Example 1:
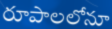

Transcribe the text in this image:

రూపాలలోనూ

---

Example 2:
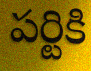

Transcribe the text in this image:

పర్టికి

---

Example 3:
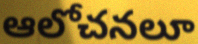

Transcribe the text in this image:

ఆలోచనలూ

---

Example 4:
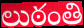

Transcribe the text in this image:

లుఠంతి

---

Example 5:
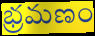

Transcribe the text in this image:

భ్రమణం